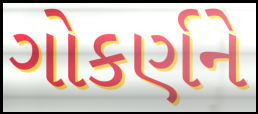
ગોકર્ણને